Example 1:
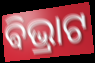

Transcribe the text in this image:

ଵିଭ୍ରାଟ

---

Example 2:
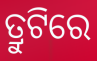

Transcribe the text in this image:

ତ୍ରୁଟିରେ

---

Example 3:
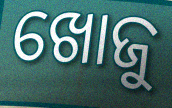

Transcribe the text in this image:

ଖୋଜୁ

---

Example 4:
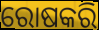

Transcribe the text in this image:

ରୋଷକରି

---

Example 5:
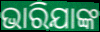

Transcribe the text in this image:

ଭାରିଯାଙ୍କ